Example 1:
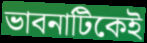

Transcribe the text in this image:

ভাবনাটিকেই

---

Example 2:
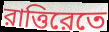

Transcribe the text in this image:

রাত্তিরেতে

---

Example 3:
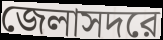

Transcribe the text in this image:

জেলাসদরে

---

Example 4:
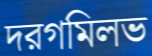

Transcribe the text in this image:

দরগমিলভ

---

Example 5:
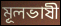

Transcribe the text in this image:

মূলভাষী